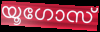
യൂഗോസ്